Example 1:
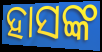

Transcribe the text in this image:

ହାସଙ୍କ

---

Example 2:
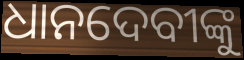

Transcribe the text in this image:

ଧାନଦେବୀଙ୍କୁ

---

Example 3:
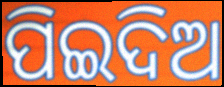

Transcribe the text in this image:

ପିଇଦିଅ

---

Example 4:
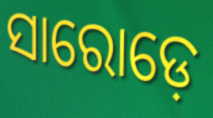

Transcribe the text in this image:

ସାରୋଡ଼େ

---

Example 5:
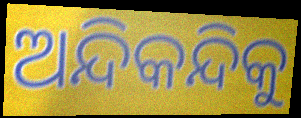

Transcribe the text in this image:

ଅନ୍ଦିକନ୍ଦିକୁ